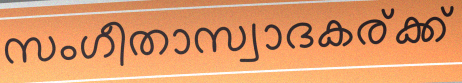
സംഗീതാസ്വാദകര്ക്ക്